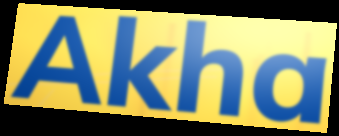
Akha